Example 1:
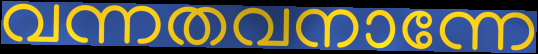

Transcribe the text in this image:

വന്നതവനാന്നേ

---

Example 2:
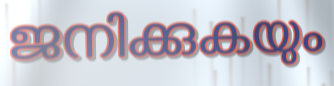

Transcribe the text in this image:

ജനിക്കുകയും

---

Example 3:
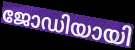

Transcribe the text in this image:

ജോഡിയായി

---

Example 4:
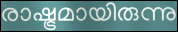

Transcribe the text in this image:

രാഷ്ട്രമായിരുന്നു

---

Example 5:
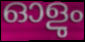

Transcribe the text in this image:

ഓളും